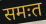
समःत